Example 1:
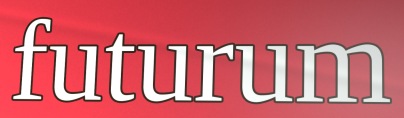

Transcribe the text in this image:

futurum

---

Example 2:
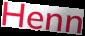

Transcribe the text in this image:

Henn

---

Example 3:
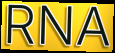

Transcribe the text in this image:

RNA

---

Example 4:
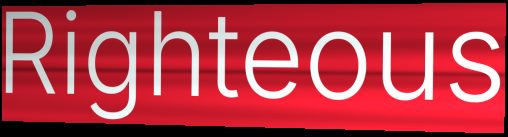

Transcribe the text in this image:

Righteous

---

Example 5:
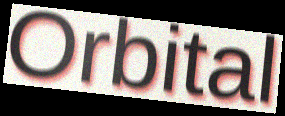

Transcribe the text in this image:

Orbital